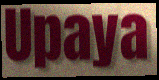
Upaya